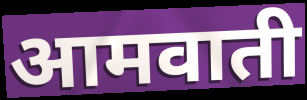
आमवाती